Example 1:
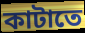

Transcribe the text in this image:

কাটাতে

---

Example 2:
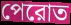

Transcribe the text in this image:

পেরোত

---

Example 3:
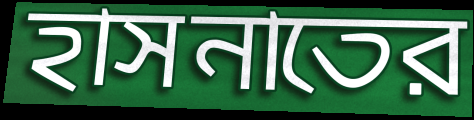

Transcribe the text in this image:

হাসনাতের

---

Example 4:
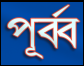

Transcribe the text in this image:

পূর্ব্ব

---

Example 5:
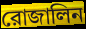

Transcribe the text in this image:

রোজালিন